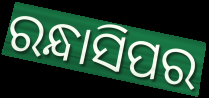
ରନ୍ଧାସିପର